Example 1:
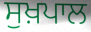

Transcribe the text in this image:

ਸੁਖ਼ਪਾਲ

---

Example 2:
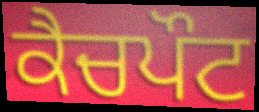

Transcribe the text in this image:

ਕੈਚਪੌਟ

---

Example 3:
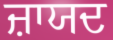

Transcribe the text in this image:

ਜ਼ਾਯਦ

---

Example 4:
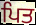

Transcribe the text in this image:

ਪਿਤ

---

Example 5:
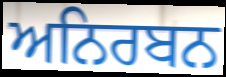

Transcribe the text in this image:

ਅਨਿਰਬਨ